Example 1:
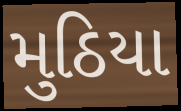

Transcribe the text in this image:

મુઠિયા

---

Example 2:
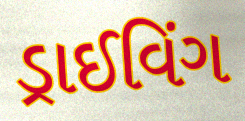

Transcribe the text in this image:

ડ્રાઈવિંગ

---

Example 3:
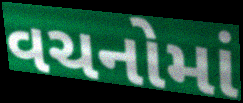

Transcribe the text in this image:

વચનોમાં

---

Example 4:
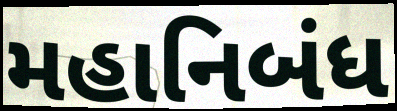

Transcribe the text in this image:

મહાનિબંધ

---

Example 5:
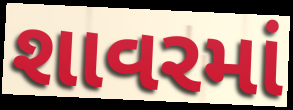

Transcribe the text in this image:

શાવરમાં